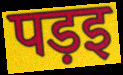
पड़इ